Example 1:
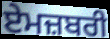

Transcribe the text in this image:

ਏਮਜ਼ਬਰੀ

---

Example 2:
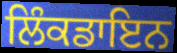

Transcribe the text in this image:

ਲਿੰਕਡਾਇਨ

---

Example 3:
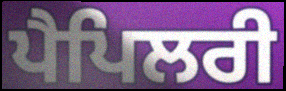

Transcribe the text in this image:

ਪੈਪਿਲਰੀ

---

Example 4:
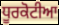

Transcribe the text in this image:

ਧੂਰਕੋਟੀਆ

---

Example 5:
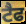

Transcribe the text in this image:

ਟੈਫ